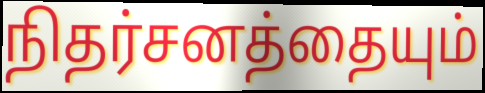
நிதர்சனத்தையும்